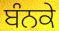
ਬੰਨਕੇ